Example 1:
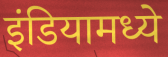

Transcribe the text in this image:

इंडियामध्ये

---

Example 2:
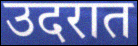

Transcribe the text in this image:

उदरात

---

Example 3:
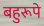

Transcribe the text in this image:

बहुरूपे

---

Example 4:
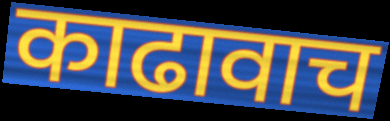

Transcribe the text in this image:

काढावाच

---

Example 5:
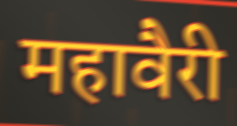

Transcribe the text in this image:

महावैरी